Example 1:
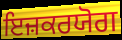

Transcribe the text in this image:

ਇਜ਼ਕਰਯੋਗ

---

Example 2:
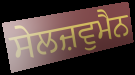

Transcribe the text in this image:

ਸੇਲਜ਼ਵੁਮੈਨ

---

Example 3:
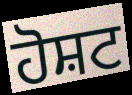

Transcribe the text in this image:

ਹੋਸ਼ਟ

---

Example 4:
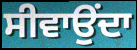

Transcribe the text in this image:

ਸੀਵਾਉਂਦਾ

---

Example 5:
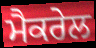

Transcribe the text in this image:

ਮੈਕਰੇਲ